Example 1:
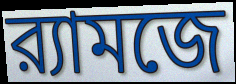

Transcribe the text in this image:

র‍্যামজে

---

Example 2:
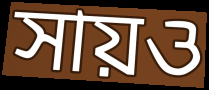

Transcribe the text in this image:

সায়ও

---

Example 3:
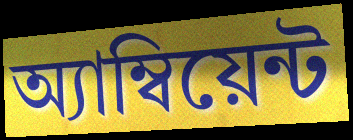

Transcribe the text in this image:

অ্যাম্বিয়েন্ট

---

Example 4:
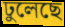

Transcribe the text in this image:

ঢুলেছে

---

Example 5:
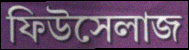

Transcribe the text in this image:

ফিউসেলাজ